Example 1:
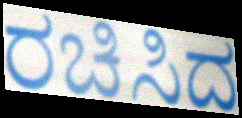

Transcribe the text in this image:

ರಚಿಸಿದ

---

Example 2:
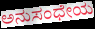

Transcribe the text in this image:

ಅನುಸಂಧೇಯ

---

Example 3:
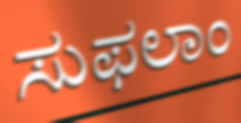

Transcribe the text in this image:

ಸುಫಲಾಂ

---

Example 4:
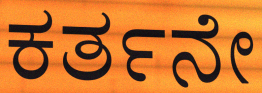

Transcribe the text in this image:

ಕರ್ತನೇ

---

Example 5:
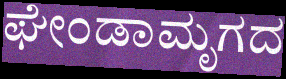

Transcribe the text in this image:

ಘೇಂಡಾಮೃಗದ